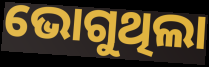
ଭୋଗୁଥିଲା